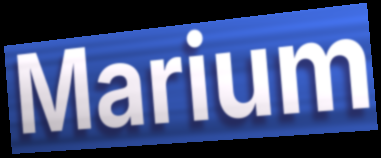
Marium